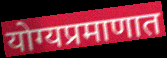
योग्यप्रमाणात